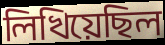
লিখিয়েছিল